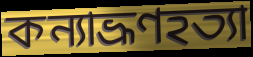
কন্যাভ্রূণহত্যা